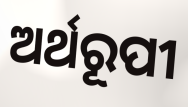
ଅର୍ଥରୂପୀ